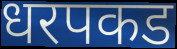
धरपकड